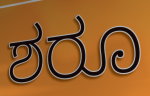
ಶರೂ